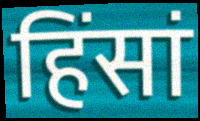
हिंसां